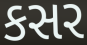
કસર